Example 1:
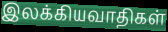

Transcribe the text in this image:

இலக்கியவாதிகள்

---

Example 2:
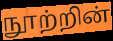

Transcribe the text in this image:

நூற்றின்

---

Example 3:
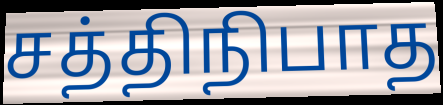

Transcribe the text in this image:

சத்திநிபாத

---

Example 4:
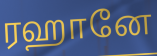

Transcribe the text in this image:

ரஹானே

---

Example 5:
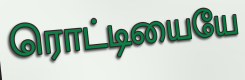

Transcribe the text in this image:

ரொட்டியையே